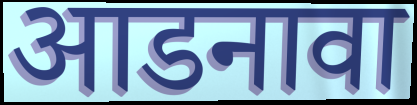
आडनावा